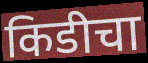
किडीचा